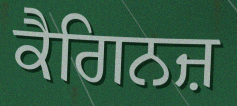
ਕੈਗਿਨਜ਼